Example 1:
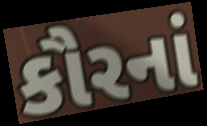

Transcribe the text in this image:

કૌરનાં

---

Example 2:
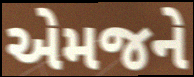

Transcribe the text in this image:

એમજને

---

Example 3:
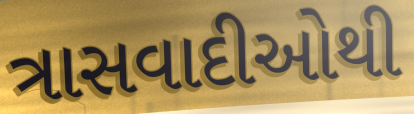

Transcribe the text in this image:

ત્રાસવાદીઓથી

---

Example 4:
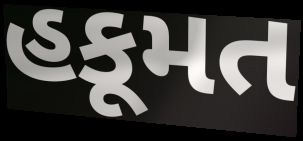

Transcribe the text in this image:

હકૂમત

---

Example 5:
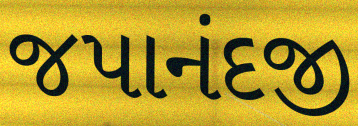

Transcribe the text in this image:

જપાનંદજી